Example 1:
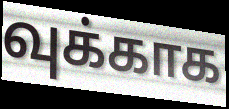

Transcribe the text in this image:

வுக்காக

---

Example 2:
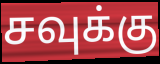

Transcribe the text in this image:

சவுக்கு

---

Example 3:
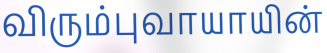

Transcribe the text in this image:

விரும்புவாயாயின்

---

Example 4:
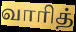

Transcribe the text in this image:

வாரித்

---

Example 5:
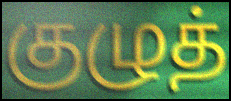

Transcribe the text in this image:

குழுத்